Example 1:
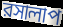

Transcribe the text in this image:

রসালাপ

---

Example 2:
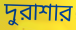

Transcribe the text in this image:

দুরাশার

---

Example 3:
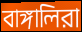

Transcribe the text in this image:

বাঙ্গালিরা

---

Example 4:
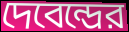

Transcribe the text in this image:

দেবেন্দ্রের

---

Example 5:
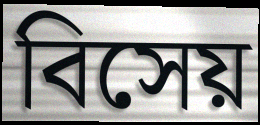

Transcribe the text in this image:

বিসেয়